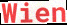
Wien